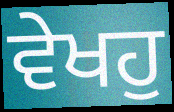
ਵੇਖਹੁ